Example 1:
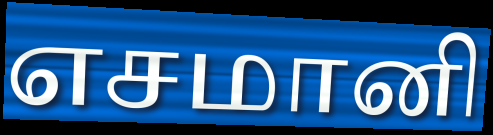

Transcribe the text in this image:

எசமானி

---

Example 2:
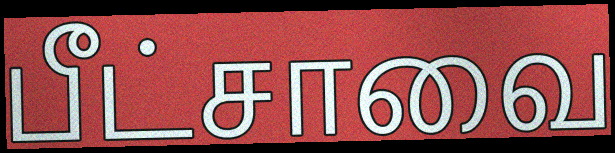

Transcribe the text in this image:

பீட்சாவை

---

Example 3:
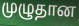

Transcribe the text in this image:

முழுதான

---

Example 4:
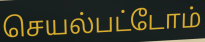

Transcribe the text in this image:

செயல்பட்டோம்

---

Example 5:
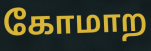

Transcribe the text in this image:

கோமாற